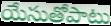
యేసుతోపాటు